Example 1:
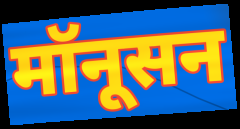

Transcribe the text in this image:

मॉनूसन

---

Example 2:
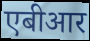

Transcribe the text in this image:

एबीआर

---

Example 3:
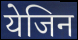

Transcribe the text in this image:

येजिन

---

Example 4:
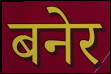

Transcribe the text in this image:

बनेर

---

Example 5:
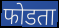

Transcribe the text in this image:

फोडता